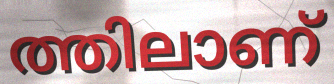
ത്തിലാണ്